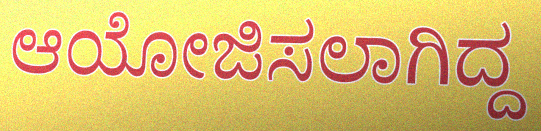
ಆಯೋಜಿಸಲಾಗಿದ್ದ